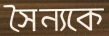
সৈন্যকে